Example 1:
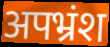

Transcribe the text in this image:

अपभ्रंश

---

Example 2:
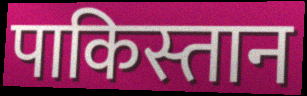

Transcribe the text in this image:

पाकिस्‍तान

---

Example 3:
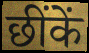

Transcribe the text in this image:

छींकें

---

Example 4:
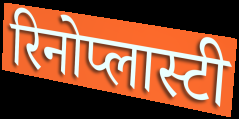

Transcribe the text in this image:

रिनोप्लास्टी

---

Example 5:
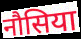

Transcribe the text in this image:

नौसिया